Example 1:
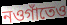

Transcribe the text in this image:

নওগাঁতেও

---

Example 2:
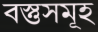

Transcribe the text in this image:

বস্তুসমূহ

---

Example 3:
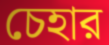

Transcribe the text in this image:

চেহার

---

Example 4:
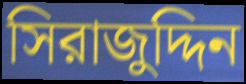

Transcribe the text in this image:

সিরাজুদ্দিন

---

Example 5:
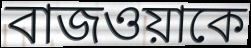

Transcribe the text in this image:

বাজওয়াকে